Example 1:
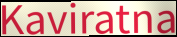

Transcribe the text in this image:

Kaviratna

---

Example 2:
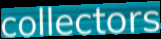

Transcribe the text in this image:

collectors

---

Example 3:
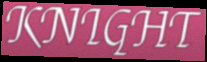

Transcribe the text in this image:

KNIGHT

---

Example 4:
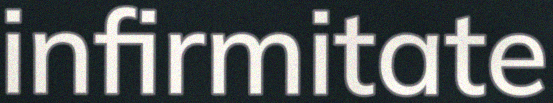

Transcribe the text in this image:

infirmitate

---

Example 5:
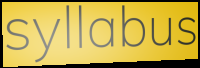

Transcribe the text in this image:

syllabus